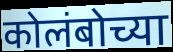
कोलंबोच्या